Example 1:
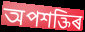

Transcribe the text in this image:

অপশক্তিৰ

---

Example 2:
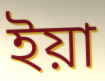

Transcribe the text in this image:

ইয়া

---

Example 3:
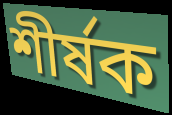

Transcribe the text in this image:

শীৰ্ষক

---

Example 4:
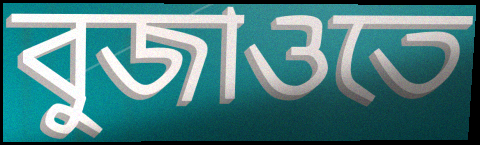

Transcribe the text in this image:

বুজাওতে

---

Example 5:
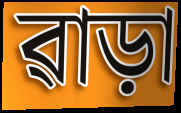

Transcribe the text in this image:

ৱাড়া